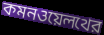
কমনওয়েলথের